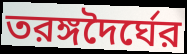
তরঙ্গদৈর্ঘের